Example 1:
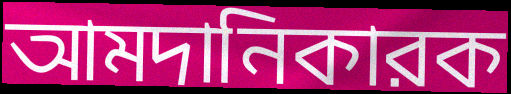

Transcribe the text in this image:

আমদানিকারক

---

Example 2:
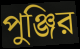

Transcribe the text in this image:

পুঞ্জির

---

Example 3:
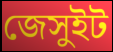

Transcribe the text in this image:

জেসুইট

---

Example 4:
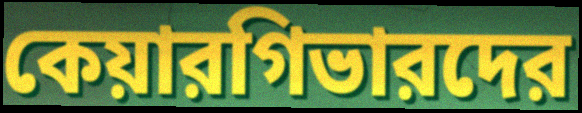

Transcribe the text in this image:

কেয়ারগিভারদের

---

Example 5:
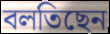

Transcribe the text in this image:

বলতিছেন